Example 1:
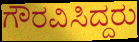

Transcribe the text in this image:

ಗೌರವಿಸಿದ್ದರು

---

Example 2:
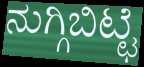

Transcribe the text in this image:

ನುಗ್ಗಿಬಿಟ್ಟೆ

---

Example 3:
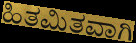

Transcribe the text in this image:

ಹಿತಮಿತವಾಗಿ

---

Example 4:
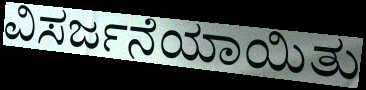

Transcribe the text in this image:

ವಿಸರ್ಜನೆಯಾಯಿತು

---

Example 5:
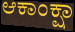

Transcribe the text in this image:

ಆಕಾಂಕ್ಷಾ